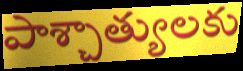
పాశ్చాత్యులకు